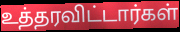
உத்தரவிட்டார்கள்